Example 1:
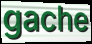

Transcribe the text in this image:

gache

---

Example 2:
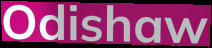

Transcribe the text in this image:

Odishaw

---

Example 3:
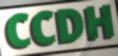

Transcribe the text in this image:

CCDH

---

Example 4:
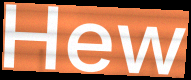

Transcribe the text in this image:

Hew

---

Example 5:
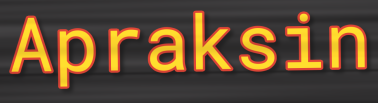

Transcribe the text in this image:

Apraksin